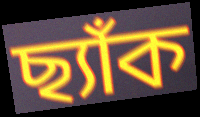
ছ্যাঁক